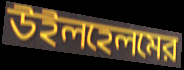
উইলহেলমের